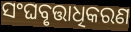
ସଂଘବୃତ୍ତାଧିକରଣ